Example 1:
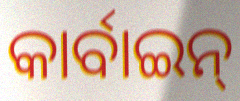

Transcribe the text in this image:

କାର୍ବାଇନ୍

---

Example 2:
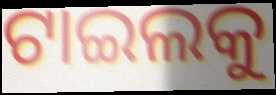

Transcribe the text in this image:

ଟାଇଲକୁ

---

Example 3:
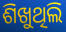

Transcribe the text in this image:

ଶିଖୁଥିଲି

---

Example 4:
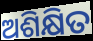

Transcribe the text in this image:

ଅଶିକ୍ଷିତ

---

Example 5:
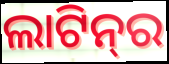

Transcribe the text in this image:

ଲାଟିନ୍‌ର